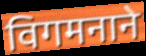
विगमनाने